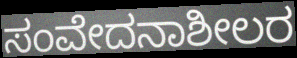
ಸಂವೇದನಾಶೀಲರ